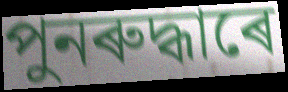
পুনৰুদ্ধাৰে